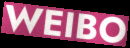
WEIBO